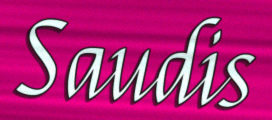
Saudis